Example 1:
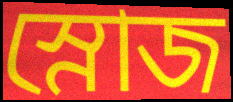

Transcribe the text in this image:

স্নোজ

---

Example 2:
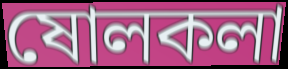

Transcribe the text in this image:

ষোলকলা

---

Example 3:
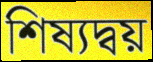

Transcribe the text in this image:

শিষ্যদ্বয়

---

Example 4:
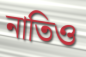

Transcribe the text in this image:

নাতিও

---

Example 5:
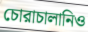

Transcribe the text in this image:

চোরাচালানিও